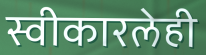
स्वीकारलेही